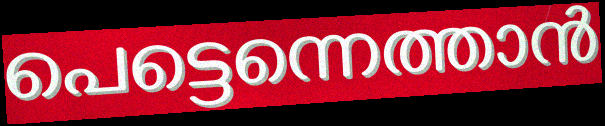
പെട്ടെന്നെത്താൻ